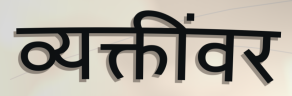
व्यक्तींवर